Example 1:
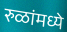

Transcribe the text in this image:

रुळांमध्ये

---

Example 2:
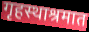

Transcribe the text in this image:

गृहस्थाश्रमात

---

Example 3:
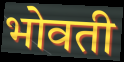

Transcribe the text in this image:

भोवती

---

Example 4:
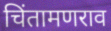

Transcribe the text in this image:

चिंतामणराव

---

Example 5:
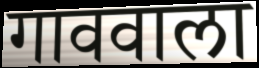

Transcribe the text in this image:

गाववाला